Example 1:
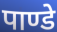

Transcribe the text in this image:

पाण्डे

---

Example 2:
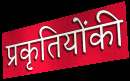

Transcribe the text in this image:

प्रकृतियोंकी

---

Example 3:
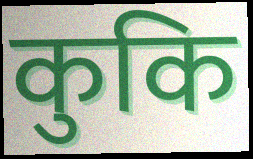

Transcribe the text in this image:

कुकि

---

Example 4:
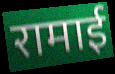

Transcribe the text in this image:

रामाई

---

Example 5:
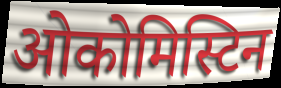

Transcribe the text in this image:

ओकोमिस्टिन